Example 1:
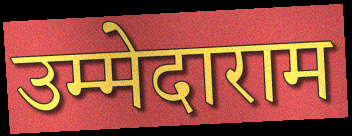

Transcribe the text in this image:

उम्मेदाराम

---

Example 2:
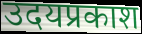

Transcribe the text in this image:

उदयप्रकाश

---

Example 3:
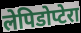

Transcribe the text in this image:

लेपिडोप्टेरा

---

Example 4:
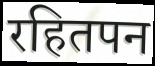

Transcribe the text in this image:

रहितपन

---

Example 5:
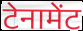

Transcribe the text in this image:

टेनामेंट